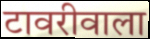
टावरीवाला